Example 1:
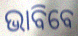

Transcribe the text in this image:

ଭାବିବେ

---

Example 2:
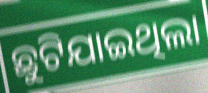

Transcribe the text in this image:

ଛୁଟିଯାଇଥିଲା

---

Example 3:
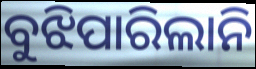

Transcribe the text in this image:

ବୁଝିପାରିଲାନି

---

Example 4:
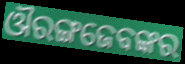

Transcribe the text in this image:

ଔରଙ୍ଗଜେବଙ୍କର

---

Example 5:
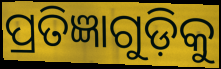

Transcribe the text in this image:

ପ୍ରତିଜ୍ଞାଗୁଡ଼ିକୁ